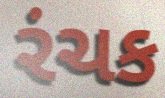
રંચક